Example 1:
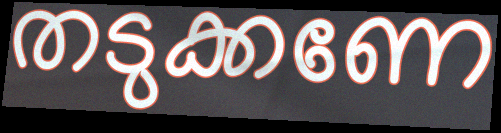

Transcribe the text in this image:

തടുക്കണേ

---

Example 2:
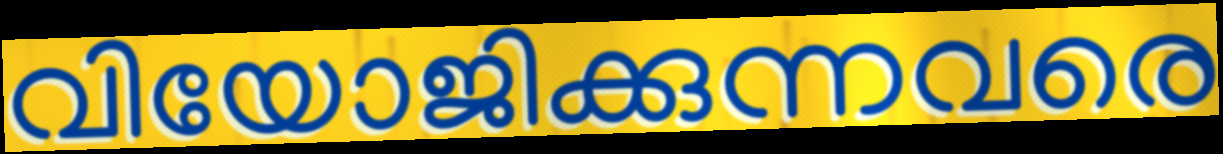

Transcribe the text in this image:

വിയോജിക്കുന്നവരെ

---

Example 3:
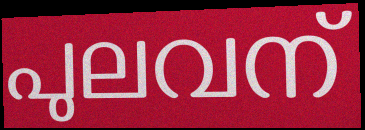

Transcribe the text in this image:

പുലവന്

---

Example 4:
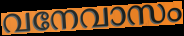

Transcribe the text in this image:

വനേവാസം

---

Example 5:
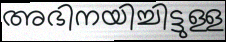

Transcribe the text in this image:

അഭിനയിച്ചിട്ടുള്ള